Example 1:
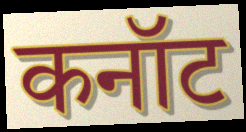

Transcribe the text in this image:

कनॉट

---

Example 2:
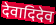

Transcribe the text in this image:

देवादिदेव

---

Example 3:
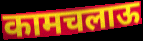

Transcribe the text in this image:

कामचलाऊ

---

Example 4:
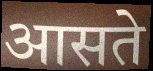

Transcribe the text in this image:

आसते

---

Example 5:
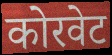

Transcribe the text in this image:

कोरवेट